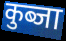
कुब्जा